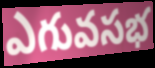
ఎగువసభ